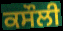
ਕਸੌਲੀ